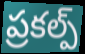
ప్రకల్ప్